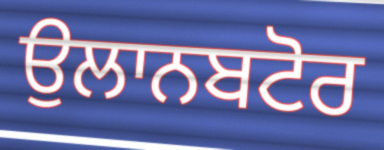
ਉਲਾਨਬਟੋਰ